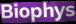
Biophys